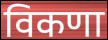
विकणा